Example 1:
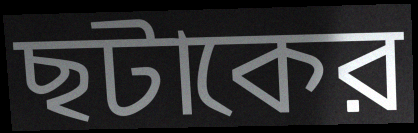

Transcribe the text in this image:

ছটাকের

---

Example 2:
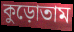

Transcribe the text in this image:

কুড়োতাম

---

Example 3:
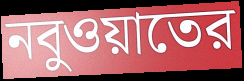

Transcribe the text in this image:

নবুওয়াতের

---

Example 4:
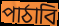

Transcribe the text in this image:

পাঠাবি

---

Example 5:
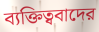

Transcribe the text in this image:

ব্যক্তিত্ববাদের